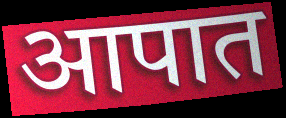
आपात